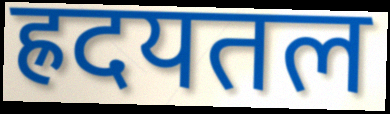
ह्रदयतल